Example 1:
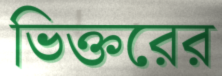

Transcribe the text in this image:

ভিক্তরের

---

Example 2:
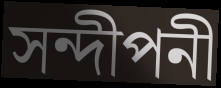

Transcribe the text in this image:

সন্দীপনী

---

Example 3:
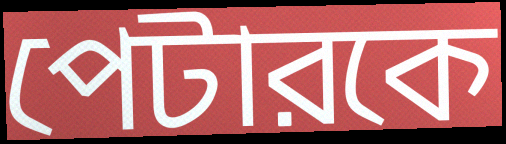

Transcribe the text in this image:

পেটারকে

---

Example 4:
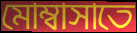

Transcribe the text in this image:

মোম্বাসাতে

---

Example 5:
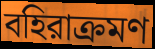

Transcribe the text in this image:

বহিরাক্রমণ